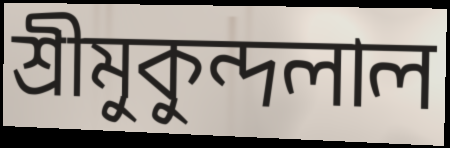
শ্রীমুকুন্দলাল